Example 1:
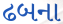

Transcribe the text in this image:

ઢબના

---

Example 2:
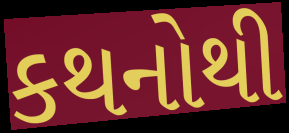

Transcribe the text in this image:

કથનોથી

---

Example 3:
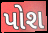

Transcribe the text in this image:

પોશ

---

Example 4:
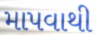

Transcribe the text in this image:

માપવાથી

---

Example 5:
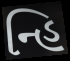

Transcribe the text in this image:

ન્હિ